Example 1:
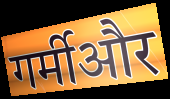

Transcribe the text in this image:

गर्मीऔर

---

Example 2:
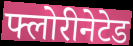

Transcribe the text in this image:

फ्लोरीनेटेड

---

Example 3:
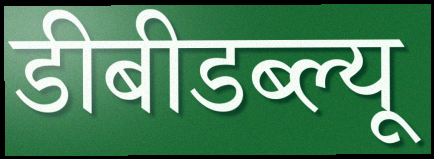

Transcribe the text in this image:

डीबीडब्ल्यू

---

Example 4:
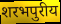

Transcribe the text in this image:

शरभपुरीय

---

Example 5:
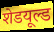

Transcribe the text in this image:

शेडयूल्ड